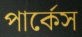
পার্কেস